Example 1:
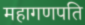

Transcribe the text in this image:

महागणपति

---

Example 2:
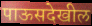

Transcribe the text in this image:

पाऊसदेखील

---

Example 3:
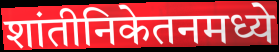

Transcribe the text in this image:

शांतीनिकेतनमध्ये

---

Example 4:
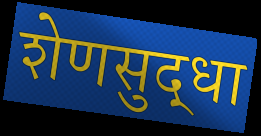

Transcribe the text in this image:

शेणसुद्धा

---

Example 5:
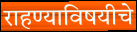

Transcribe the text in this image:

राहण्याविषयीचे